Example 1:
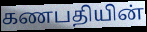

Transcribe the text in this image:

கணபதியின்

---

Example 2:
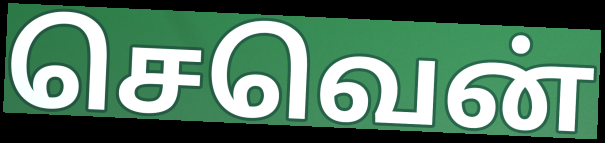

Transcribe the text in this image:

செவென்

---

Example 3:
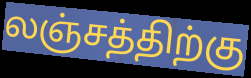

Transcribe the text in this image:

லஞ்சத்திற்கு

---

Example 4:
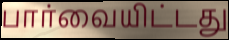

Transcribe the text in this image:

பார்வையிட்டது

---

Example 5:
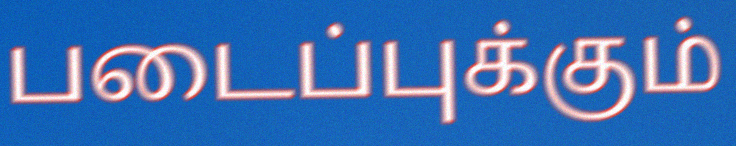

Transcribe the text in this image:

படைப்புக்கும்